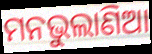
ମନଭୁଲାଣିଆ